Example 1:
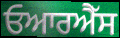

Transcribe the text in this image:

ਓਆਰਐੱਸ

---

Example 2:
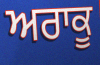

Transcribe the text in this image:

ਅਰਾਕੂ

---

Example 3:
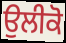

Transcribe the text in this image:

ਉਲੀਕੋ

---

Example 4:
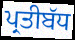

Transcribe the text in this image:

ਪ੍ਰਤੀਬੱਧ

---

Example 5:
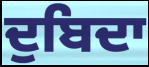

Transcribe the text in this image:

ਦੁਬਿਦਾ